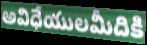
అవిధేయులమీదికి